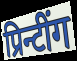
प्रिन्टींग